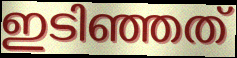
ഇടിഞ്ഞത്